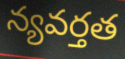
న్యవర్తత